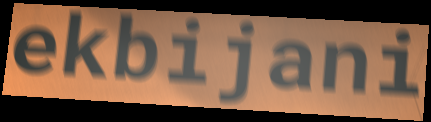
ekbijani